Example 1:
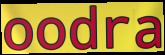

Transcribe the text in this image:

oodra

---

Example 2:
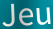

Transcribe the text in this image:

Jeu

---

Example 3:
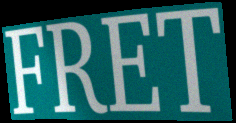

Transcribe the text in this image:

FRET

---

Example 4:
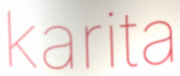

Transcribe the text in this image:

karita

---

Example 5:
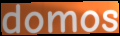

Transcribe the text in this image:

domos